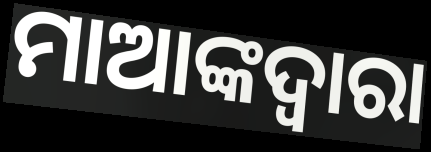
ମାଆଙ୍କଦ୍ଵାରା